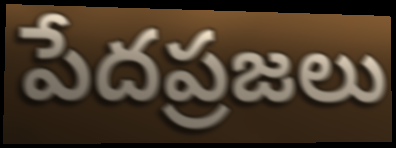
పేదప్రజలు